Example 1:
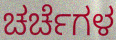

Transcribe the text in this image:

ಚರ್ಚೆಗಳ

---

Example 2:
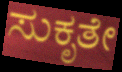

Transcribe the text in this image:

ಸುಕೃತೇ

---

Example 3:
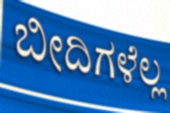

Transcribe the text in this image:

ಬೀದಿಗಳೆಲ್ಲ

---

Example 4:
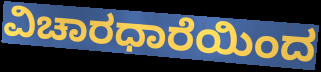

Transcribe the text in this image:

ವಿಚಾರಧಾರೆಯಿಂದ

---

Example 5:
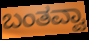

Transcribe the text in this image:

ಬಂತವ್ವಾ